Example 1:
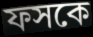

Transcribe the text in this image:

ফসকে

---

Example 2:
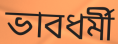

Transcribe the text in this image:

ভাবধর্মী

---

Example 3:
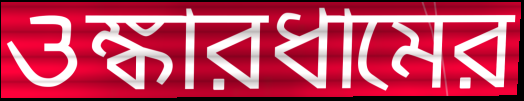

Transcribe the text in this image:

ওঙ্কারধামের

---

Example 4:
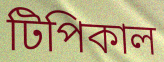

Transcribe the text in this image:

টিপিকাল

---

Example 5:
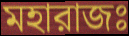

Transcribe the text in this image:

মহারাজঃ